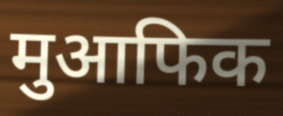
मुआफिक